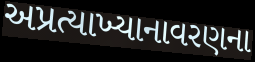
અપ્રત્યાખ્યાનાવરણના